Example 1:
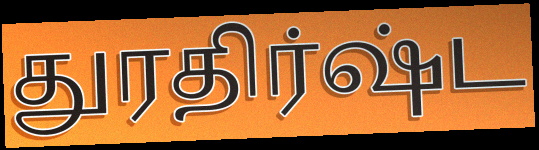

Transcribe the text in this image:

துரதிர்ஷ்ட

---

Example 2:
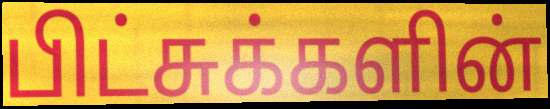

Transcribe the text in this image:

பிட்சுக்களின்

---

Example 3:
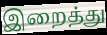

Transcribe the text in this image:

இறைத்து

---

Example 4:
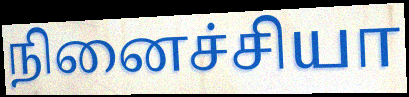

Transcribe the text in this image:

நினைச்சியா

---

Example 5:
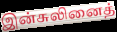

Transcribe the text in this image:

இன்சுலினைத்